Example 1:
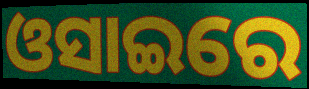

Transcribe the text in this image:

ଓସାଇରେ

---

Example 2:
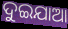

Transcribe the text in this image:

ଦୁଇଯାଆ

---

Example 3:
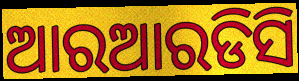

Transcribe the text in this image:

ଆରଆରଡିସି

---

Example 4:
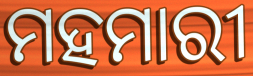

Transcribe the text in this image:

ମହମାରୀ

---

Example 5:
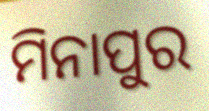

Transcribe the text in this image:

ମିନାପୁର